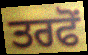
ਤਰਫੋਂ